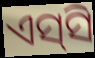
ଏସ୍‌ସି